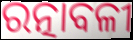
ରତ୍ନାବଳୀ